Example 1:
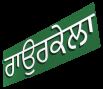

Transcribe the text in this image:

ਰਾਉਰਕੇਲਾ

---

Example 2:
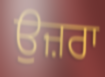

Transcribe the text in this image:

ਉਜ਼ਰਾ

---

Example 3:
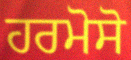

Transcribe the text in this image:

ਹਰਮੋਸੋ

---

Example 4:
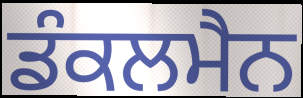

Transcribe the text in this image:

ਡੰਕਲਮੈਨ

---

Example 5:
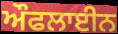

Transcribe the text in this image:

ਔਫਲਾਈਨ